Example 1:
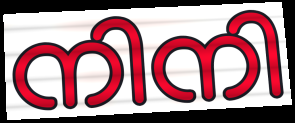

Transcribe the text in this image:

നിനി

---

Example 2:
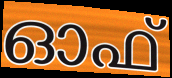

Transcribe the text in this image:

ഓഫ്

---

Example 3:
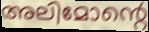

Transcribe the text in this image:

അലിമോന്റെ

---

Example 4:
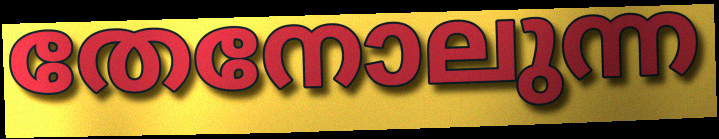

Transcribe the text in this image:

തേനോലുന്ന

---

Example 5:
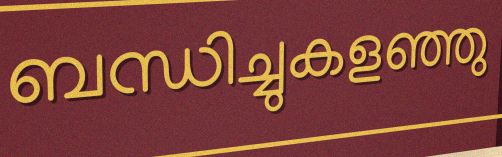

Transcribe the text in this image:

ബന്ധിച്ചുകളഞ്ഞു